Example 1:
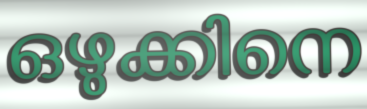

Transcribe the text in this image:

ഒഴുക്കിനെ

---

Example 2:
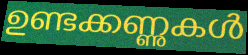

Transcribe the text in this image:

ഉണ്ടക്കണ്ണുകൾ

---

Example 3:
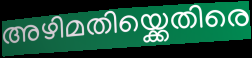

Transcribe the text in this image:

അഴിമതിയ്ക്കെതിരെ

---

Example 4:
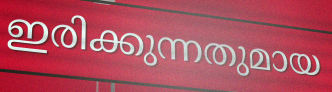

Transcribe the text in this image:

ഇരിക്കുന്നതുമായ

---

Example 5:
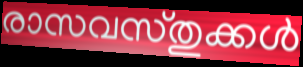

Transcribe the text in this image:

രാസവസ്തുക്കൾ